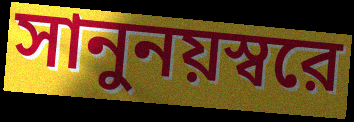
সানুনয়স্বরে